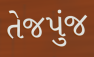
તેજપુંજ